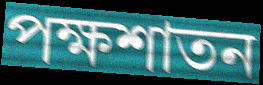
পক্ষশাতন